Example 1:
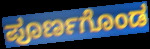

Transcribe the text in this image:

ಪೂರ್ಣಗೊಂಡ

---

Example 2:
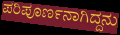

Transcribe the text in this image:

ಪರಿಪೂರ್ಣನಾಗಿದ್ದನು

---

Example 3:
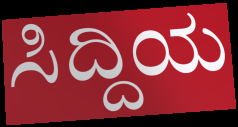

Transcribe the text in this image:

ಸಿದ್ದಿಯ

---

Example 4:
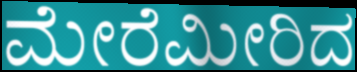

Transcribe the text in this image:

ಮೇರೆಮೀರಿದ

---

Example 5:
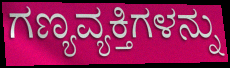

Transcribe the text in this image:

ಗಣ್ಯವ್ಯಕ್ತಿಗಳನ್ನು